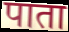
पाता